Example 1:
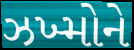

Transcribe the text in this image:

ઝખ્મોને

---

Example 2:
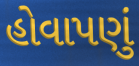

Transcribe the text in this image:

હોવાપણું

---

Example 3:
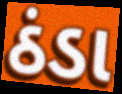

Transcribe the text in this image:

ઠંડા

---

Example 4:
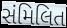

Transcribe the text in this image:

સંમિલિત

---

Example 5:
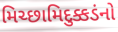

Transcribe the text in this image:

મિચ્છામિદુક્કડંનો